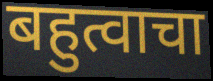
बहुत्वाचा